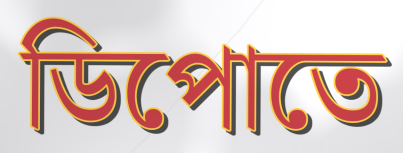
ডিপোতে